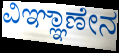
ವಿಞ್ಞಾಣೇನ